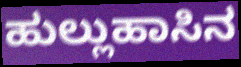
ಹುಲ್ಲುಹಾಸಿನ